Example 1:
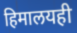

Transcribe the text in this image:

हिमालयही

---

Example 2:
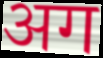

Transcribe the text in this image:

अग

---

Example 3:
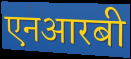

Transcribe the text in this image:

एनआरबी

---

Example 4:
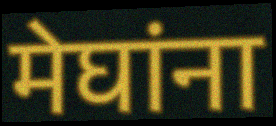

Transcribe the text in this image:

मेघांना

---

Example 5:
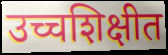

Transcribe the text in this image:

उच्चशिक्षीत